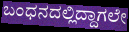
ಬಂಧನದಲ್ಲಿದ್ದಾಗಲೇ